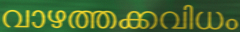
വാഴത്തക്കവിധം